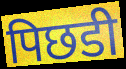
पिछडी